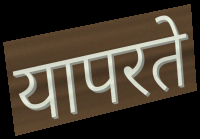
यापरते